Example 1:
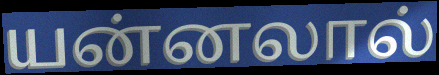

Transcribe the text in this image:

யன்னலால்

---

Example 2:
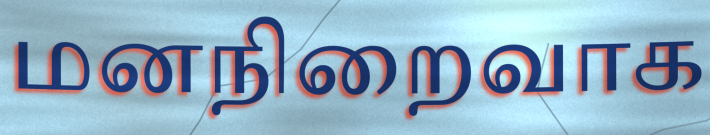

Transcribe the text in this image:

மனநிறைவாக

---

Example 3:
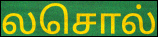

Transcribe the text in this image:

லசொல்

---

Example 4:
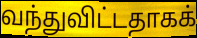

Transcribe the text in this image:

வந்துவிட்டதாகக்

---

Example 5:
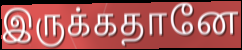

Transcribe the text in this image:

இருக்கதானே